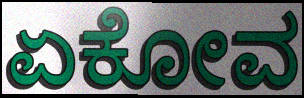
ಏಕೋವ